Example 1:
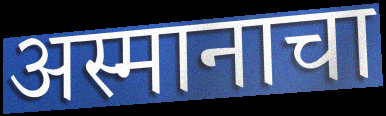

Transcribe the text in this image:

अस्मानाचा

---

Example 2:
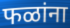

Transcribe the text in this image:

फळांना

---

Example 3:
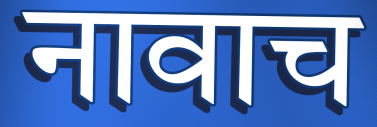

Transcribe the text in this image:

नावाच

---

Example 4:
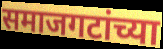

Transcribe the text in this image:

समाजगटांच्या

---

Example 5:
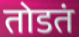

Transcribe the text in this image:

तोडतं